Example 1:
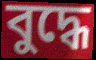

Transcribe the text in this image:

বুদ্ধে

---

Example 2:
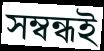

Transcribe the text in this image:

সম্বন্ধই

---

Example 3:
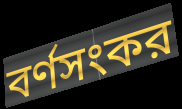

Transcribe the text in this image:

বর্ণসংকর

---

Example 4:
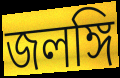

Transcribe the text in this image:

জলঙ্গি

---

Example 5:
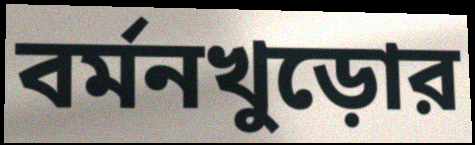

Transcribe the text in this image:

বর্মনখুড়োর